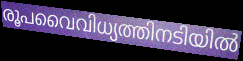
രൂപവൈവിധ്യത്തിനടിയിൽ